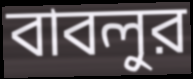
বাবলুর